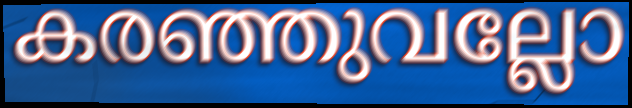
കരഞ്ഞുവല്ലോ